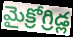
మైక్రోగ్రిడ్ల